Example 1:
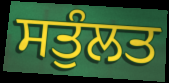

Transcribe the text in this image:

ਸਤੁੰਲਤ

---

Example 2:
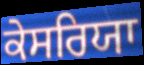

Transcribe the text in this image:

ਕੇਸਰਿਯਾ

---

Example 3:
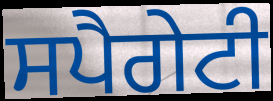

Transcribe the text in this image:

ਸਪੈਗੇਟੀ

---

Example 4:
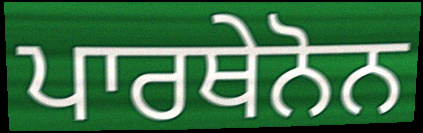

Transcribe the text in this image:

ਪਾਰਥੇਨੋਨ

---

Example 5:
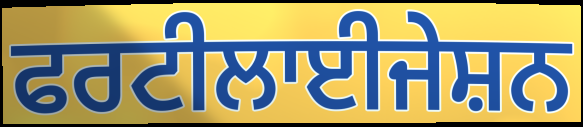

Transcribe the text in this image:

ਫਰਟੀਲਾਈਜੇਸ਼ਨ